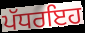
ਪੱਧਰਇਹ